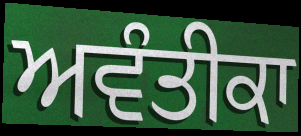
ਅਵੰਤੀਕਾ